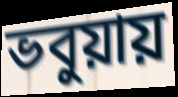
ভবুয়ায়